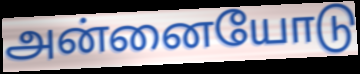
அன்னையோடு